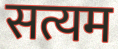
सत्यम